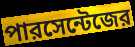
পারসেন্টেজের